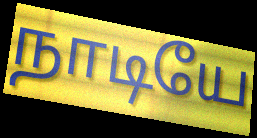
நாடியே